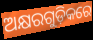
ଅକ୍ଷରଗୁଡ଼ିକରେ